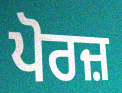
ਪੋਰਜ਼